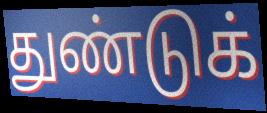
துண்டுக்